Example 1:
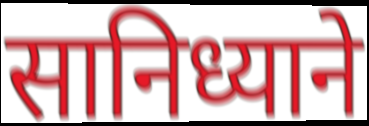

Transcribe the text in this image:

सानिध्याने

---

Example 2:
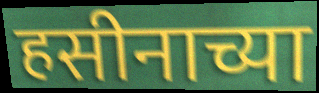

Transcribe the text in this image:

हसीनाच्या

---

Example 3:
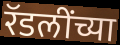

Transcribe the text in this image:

रॅडलींच्या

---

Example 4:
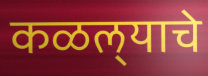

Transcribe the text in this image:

कळल्याचे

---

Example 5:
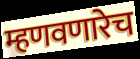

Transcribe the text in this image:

म्हणवणारेच